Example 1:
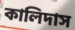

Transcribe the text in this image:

কালিদাস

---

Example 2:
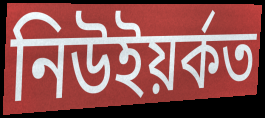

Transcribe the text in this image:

নিউইয়ৰ্কত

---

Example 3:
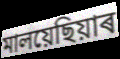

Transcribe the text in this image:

মালয়েছিয়াৰ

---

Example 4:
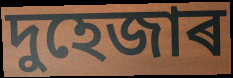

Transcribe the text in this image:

দুহেজাৰ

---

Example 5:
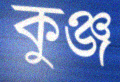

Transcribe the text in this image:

কুঞ্জ